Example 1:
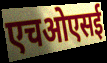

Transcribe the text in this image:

एचओएसई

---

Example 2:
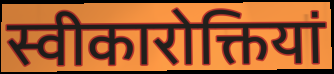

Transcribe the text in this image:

स्वीकारोक्तियां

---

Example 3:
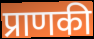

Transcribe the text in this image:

प्राणकी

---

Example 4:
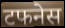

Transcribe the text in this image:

टफनेस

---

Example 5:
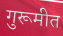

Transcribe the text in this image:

गुरूमीत